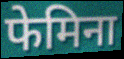
फेमिना